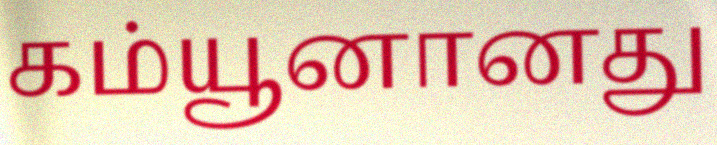
கம்யூனானது